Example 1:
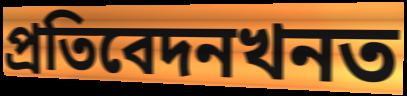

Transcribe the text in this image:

প্ৰতিবেদনখনত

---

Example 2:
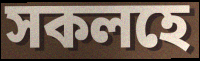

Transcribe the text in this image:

সকলহে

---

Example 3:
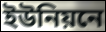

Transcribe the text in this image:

ইউনিয়নে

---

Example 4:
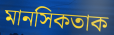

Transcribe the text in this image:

মানসিকতাক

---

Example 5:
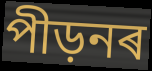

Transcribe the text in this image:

পীড়নৰ